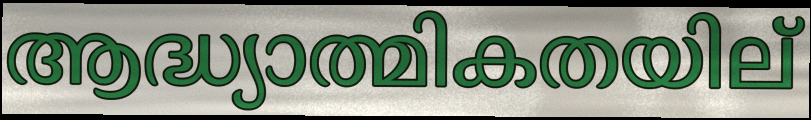
ആദ്ധ്യാത്മികതയില്